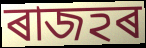
ৰাজহৰ